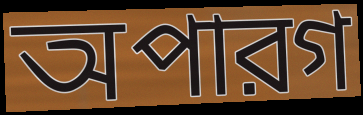
অপারগ